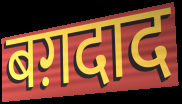
बग़दाद